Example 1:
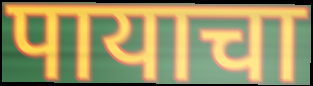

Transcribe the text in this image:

पायाचा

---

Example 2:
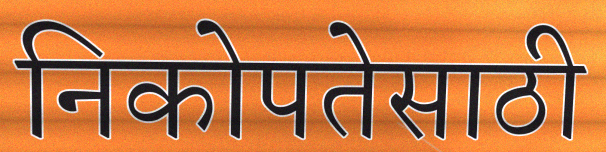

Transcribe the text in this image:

निकोपतेसाठी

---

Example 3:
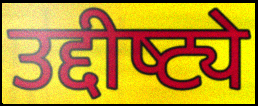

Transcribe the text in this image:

उद्दीष्ट्ये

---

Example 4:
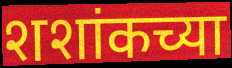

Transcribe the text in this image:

शशांकच्या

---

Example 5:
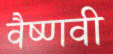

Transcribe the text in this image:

वैष्णवी